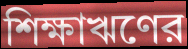
শিক্ষাঋণের